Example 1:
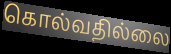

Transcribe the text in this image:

கொல்வதில்லை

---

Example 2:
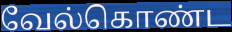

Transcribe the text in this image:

வேல்கொண்ட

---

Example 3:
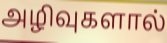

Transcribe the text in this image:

அழிவுகளால்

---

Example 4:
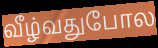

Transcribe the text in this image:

வீழ்வதுபோல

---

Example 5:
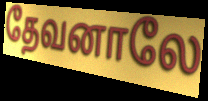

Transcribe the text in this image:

தேவனாலே